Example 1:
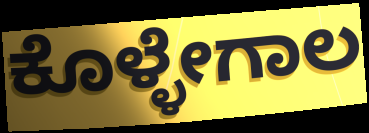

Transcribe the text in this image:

ಕೊಳ್ಳೇಗಾಲ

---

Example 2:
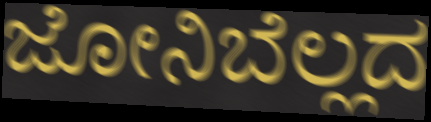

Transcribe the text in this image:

ಜೋನಿಬೆಲ್ಲದ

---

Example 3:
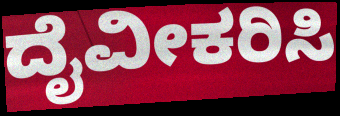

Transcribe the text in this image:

ದೈವೀಕರಿಸಿ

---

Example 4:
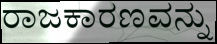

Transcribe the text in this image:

ರಾಜಕಾರಣವನ್ನು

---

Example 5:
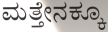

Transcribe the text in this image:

ಮತ್ತೇನಕ್ಕೂ